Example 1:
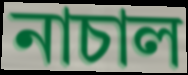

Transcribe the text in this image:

নাচাল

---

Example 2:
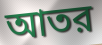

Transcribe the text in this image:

আতর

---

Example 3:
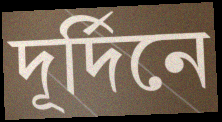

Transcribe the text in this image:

দূর্দিনে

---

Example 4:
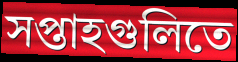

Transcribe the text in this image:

সপ্তাহগুলিতে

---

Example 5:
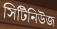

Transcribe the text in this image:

সিটিনিউজ